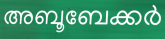
അബൂബേക്കർ